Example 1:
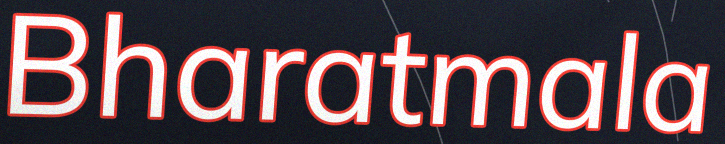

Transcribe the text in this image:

Bharatmala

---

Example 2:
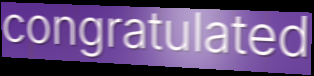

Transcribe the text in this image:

congratulated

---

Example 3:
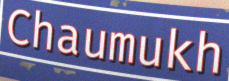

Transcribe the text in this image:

Chaumukh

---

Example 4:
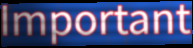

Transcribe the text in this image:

Important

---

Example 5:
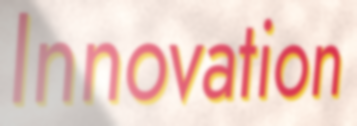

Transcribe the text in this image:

Innovation